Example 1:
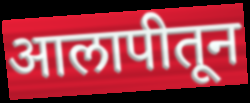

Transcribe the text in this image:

आलापीतून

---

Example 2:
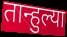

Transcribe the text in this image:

तान्हुल्या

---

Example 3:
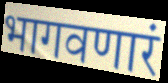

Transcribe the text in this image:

भागवणारं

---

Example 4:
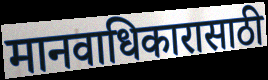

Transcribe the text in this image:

मानवाधिकारासाठी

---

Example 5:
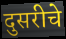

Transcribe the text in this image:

दुसरीचे